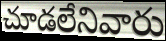
చూడలేనివారు